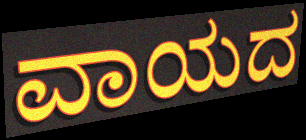
ವಾಯದ